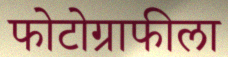
फोटोग्राफीला